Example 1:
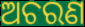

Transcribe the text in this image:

ଅଚରଣ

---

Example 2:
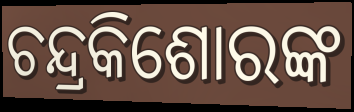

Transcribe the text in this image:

ଚନ୍ଦ୍ରକିଶୋରଙ୍କ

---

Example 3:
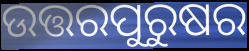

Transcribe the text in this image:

ଉତ୍ତରପୁରୁଷର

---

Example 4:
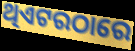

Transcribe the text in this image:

ଥିଏଟରଠାରେ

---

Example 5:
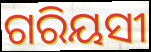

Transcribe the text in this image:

ଗରିୟସୀ